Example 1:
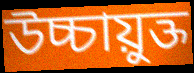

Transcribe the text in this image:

উচ্চায়ুক্ত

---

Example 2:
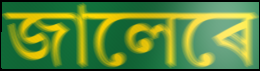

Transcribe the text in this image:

জালেৰে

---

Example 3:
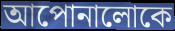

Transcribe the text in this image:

আপোনালোকে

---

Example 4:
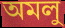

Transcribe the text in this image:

অমলু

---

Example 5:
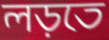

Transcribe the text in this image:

লড়তে